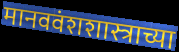
मानववंशशास्त्राच्या